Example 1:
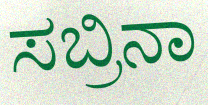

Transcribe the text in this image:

ಸಬ್ರಿನಾ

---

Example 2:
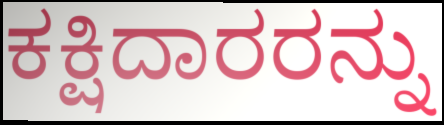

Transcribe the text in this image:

ಕಕ್ಷಿದಾರರನ್ನು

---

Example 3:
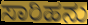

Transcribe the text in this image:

ಸಾರಿಹನು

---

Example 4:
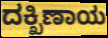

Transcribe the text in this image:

ದಕ್ಖಿಣಾಯ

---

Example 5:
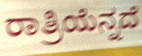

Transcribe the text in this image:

ರಾತ್ರಿಯೆನ್ನದೆ